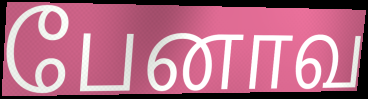
பேனாவ